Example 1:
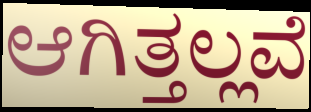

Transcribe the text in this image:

ಆಗಿತ್ತಲ್ಲವೆ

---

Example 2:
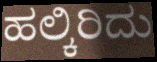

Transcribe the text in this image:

ಹಲ್ಕಿರಿದು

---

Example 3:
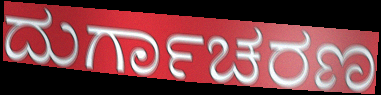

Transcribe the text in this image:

ದುರ್ಗಾಚರಣ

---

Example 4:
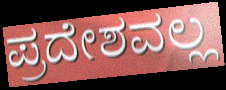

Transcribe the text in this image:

ಪ್ರದೇಶವಲ್ಲ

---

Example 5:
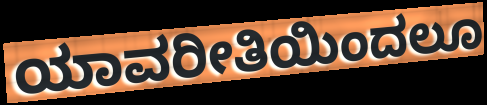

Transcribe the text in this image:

ಯಾವರೀತಿಯಿಂದಲೂ